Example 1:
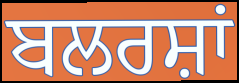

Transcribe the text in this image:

ਬਲਰਸ਼ਾਂ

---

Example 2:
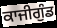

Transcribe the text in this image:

ਕਾਜੀਗੁੰਡ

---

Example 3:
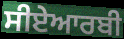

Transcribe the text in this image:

ਸੀਏਆਰਬੀ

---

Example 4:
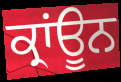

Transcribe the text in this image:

ਕ੍ਰਾਂਊਨ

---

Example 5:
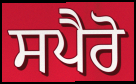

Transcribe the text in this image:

ਸਪੈਰੋ